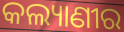
କଲ୍ୟାଣୀର